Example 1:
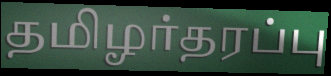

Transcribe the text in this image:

தமிழர்தரப்பு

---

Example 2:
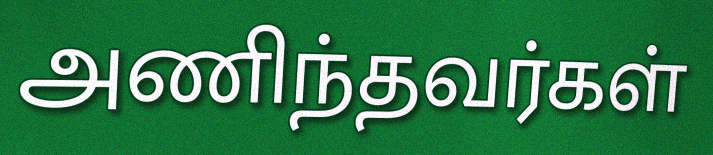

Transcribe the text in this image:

அணிந்தவர்கள்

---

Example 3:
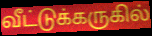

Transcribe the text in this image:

வீட்டுக்கருகில்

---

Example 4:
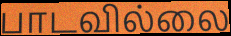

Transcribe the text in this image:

பாடவில்லை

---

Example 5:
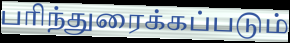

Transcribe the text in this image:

பரிந்துரைக்கப்படும்